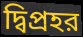
দ্বিপ্রহর